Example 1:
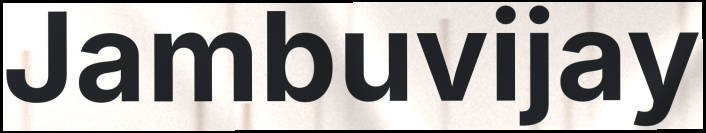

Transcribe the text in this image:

Jambuvijay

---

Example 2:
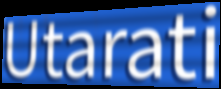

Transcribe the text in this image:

Utarati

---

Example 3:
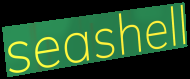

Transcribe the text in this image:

seashell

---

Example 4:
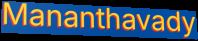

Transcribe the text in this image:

Mananthavady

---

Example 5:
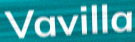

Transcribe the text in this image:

Vavilla